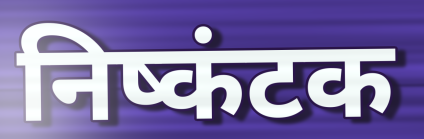
निष्कंटक